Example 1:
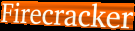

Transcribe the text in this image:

Firecracker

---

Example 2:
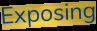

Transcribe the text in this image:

Exposing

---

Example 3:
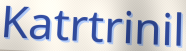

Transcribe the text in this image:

Katrtrinil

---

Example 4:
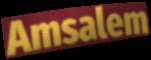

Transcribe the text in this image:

Amsalem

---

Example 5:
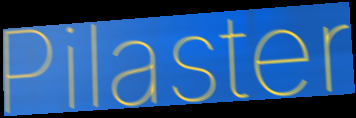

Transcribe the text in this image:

Pilaster